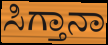
ಸಿಗ್ತಾನಾ